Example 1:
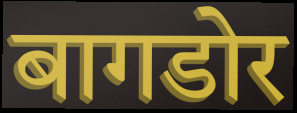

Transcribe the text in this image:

बागडोर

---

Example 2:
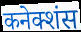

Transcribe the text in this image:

कनेक्शंस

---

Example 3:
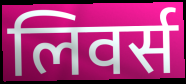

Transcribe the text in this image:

लिवर्स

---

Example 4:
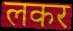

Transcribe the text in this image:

लकर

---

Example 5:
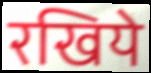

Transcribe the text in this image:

रखिये